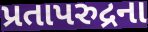
પ્રતાપરુદ્રના